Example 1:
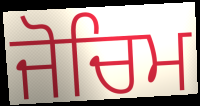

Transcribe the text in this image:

ਜੋਚਿਮ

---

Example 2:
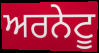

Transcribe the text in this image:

ਅਰਨੇਟੂ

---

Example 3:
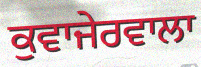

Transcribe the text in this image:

ਕੁਵਾਜੇਰਵਾਲਾ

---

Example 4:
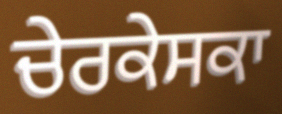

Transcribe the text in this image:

ਚੇਰਕੇਸਕਾ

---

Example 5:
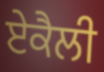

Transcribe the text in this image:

ਏਕੈਲੀ